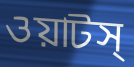
ওয়াটস্